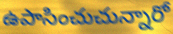
ఉపాసించుచున్నారో